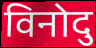
विनोदु